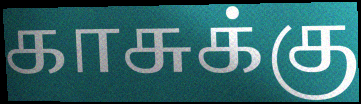
காசுக்கு